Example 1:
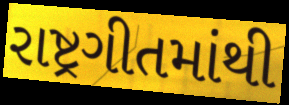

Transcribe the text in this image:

રાષ્ટ્રગીતમાંથી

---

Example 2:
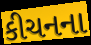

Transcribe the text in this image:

કીચનના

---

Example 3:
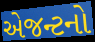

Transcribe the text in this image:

એજન્ટનો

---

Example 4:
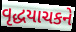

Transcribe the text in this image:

વૃદ્ધયાચકને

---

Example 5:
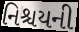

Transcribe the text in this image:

નિશ્ચયની